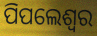
ପିପଲେଶ୍ୱର